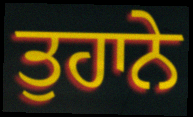
ਤੁਹਾਨੇ